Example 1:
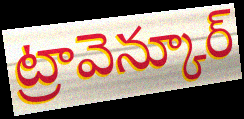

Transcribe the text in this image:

ట్రావెన్కూర్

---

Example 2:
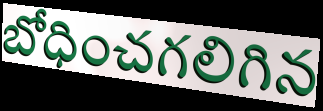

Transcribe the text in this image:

బోధించగలిగిన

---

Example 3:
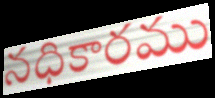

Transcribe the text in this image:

నధికారము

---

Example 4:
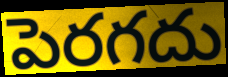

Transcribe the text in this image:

పెరగదు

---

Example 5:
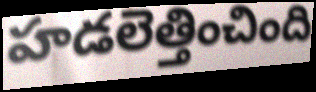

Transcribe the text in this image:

హడలెత్తించింది